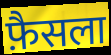
फ़ैसला